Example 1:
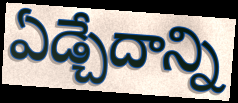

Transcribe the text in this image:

ఏడ్చేదాన్ని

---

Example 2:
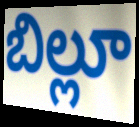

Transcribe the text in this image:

బిల్లూ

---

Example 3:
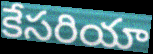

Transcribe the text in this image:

కేసరియా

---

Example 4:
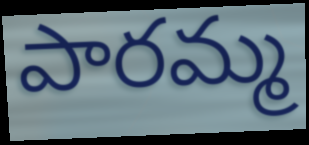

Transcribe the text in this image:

పారమ్మ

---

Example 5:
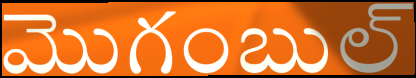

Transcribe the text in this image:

మొగంబుల్